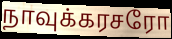
நாவுக்கரசரோ